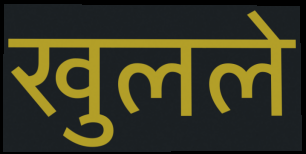
खुलले